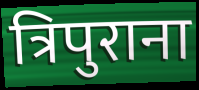
त्रिपुराना